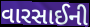
વારસાઈની